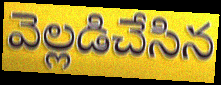
వెల్లడిచేసిన